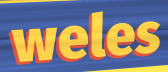
weles